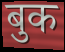
बुक